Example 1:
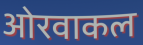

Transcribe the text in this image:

ओरवाकल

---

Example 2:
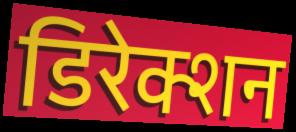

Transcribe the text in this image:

डिरेक्शन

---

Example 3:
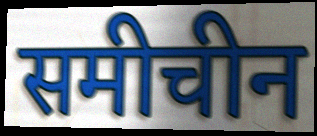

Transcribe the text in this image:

समीचीन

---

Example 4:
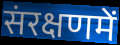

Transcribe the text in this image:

संरक्षणमें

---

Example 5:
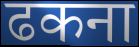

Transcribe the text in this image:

ढकना